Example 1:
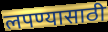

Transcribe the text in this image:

लपण्यासाठी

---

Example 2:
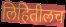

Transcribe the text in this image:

लिहितीलच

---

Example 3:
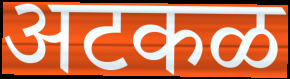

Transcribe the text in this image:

अटकळ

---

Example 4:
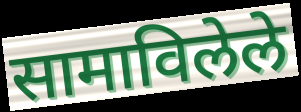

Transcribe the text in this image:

सामाविलेले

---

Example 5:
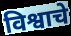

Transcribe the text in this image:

विश्वाचे